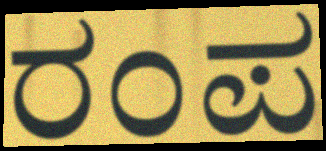
ರಂಪ